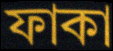
ফাকা